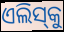
ଏଲିସ୍‌କୁ